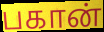
பகான்